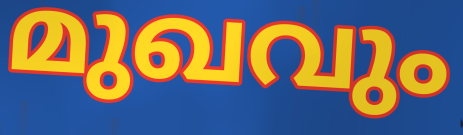
മുഖവും